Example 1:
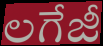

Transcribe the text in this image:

లగేజీ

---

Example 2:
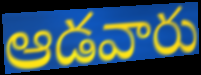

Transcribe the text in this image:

ఆడవారు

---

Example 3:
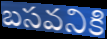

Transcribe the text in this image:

బసవనికి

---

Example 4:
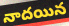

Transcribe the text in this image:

నాదయిన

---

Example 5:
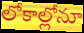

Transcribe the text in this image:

లోకాల్లోనూ